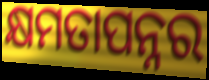
କ୍ଷମତାପନ୍ନର